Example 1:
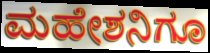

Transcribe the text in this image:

ಮಹೇಶನಿಗೂ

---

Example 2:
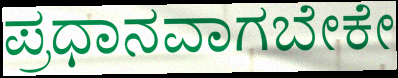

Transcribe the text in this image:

ಪ್ರಧಾನವಾಗಬೇಕೇ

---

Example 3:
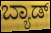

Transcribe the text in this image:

ಬ್ಯಾಡ್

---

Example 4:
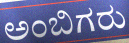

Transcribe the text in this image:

ಅಂಬಿಗರು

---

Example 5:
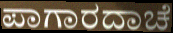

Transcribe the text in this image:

ಪಾಗಾರದಾಚೆ